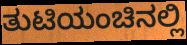
ತುಟಿಯಂಚಿನಲ್ಲಿ